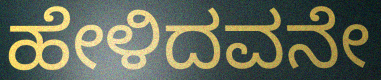
ಹೇಳಿದವನೇ